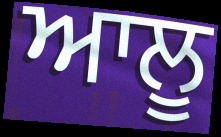
ਆਲੂ